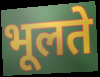
भूलते